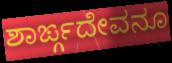
ಶಾರ್ಙ್ಗದೇವನೂ